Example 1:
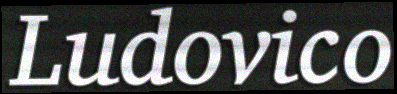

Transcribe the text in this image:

Ludovico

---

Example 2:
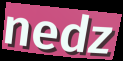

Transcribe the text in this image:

nedz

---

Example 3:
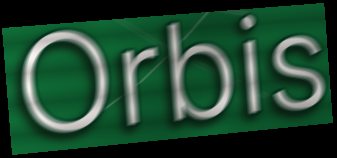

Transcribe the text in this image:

Orbis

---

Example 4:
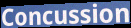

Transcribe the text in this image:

Concussion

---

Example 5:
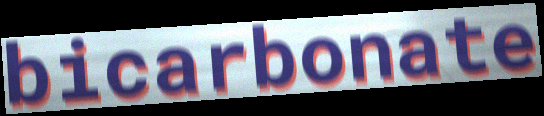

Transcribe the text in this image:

bicarbonate